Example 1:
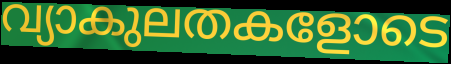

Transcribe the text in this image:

വ്യാകുലതകളോടെ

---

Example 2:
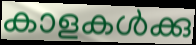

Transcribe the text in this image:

കാളകൾക്കു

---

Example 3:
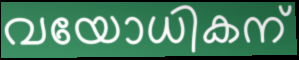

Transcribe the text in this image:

വയോധികന്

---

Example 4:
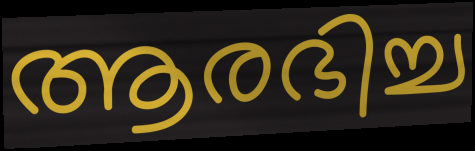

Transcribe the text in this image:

ആരഭിച്ച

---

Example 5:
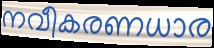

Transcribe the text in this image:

നവീകരണധാര